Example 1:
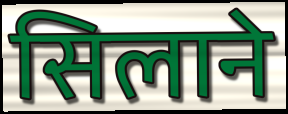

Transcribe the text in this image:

सिलाने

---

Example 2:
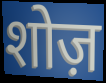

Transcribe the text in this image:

शोज़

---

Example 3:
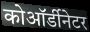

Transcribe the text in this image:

कोऑर्डीनेटर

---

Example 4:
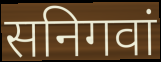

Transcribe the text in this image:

सनिगवां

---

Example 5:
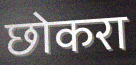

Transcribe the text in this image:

छोकरा